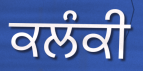
ਕਲੰਕੀ